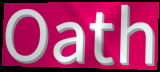
Oath